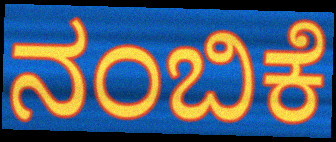
ನಂಬಿಕೆ